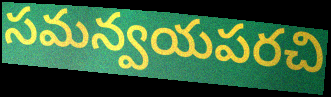
సమన్వయపరచి